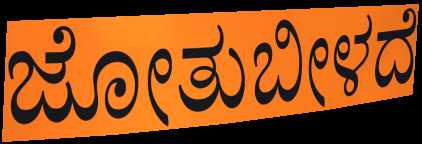
ಜೋತುಬೀಳದೆ